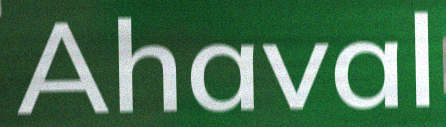
Ahaval